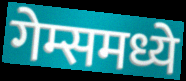
गेम्समध्ये